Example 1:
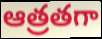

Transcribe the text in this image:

ఆత్రతగా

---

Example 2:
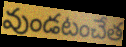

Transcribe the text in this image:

వుండటంచేత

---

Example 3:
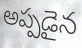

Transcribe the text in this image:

అప్పడైన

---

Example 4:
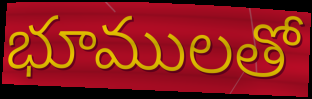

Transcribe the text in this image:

భూములతో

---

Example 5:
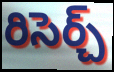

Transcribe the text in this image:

రిసెర్చ్